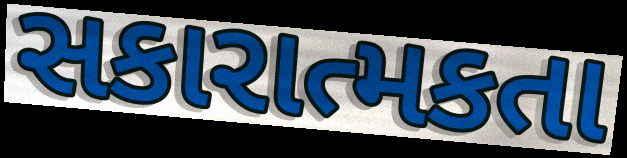
સકારાત્મકતા